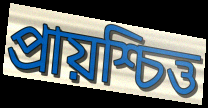
প্ৰায়শ্চিত্ত